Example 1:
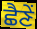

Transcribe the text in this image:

ਛੈਣੇਂ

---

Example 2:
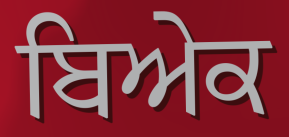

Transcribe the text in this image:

ਬਿਅੇਕ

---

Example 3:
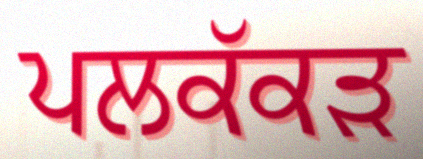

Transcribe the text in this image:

ਪਲਕੱਕੜ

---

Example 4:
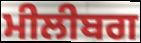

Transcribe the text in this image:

ਮੀਲੀਬਗ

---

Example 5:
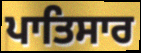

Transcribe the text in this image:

ਪਾਤਿਸਾਰ